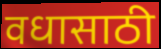
वधासाठी